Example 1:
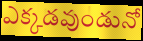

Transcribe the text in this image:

ఎక్కడవుండునో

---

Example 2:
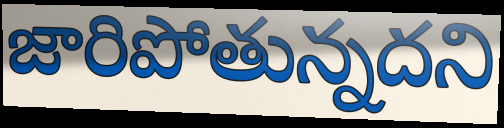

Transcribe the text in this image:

జారిపోతున్నదని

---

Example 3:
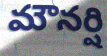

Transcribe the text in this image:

మౌనర్షి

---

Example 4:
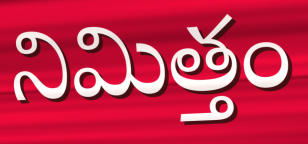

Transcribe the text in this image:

నిమిత్తం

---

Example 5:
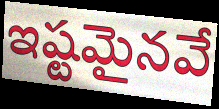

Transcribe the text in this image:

ఇష్టమైనవే